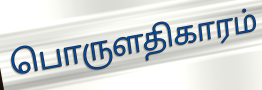
பொருளதிகாரம்